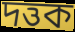
দত্তক